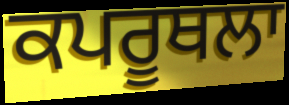
ਕਪਰੂਥਲਾ